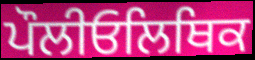
ਪੌਲੀਓਲਿਥਿਕ